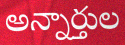
అన్నార్తుల